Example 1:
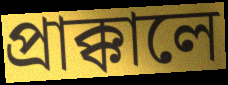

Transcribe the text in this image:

প্রাক্কালে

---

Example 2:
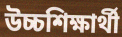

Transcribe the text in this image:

উচ্চশিক্ষার্থী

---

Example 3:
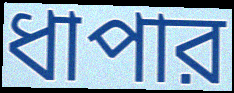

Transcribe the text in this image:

ধাপার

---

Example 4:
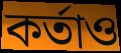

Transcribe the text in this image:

কর্তাও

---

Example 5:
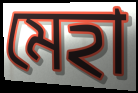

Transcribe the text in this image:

মেহা